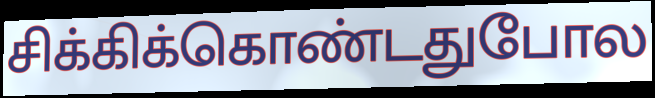
சிக்கிக்கொண்டதுபோல